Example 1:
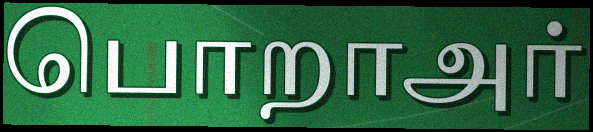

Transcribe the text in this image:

பொறாஅர்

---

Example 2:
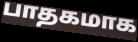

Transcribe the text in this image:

பாதகமாக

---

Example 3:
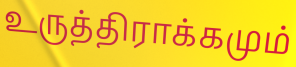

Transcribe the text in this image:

உருத்திராக்கமும்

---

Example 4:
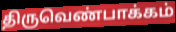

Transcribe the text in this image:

திருவெண்பாக்கம்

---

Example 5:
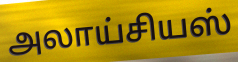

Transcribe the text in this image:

அலாய்சியஸ்